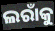
ଲରାଁକୁ